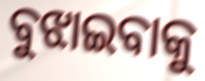
ବୁଝାଇବାକୁ